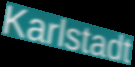
Karlstadt